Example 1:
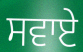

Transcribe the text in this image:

ਸਵਾਏ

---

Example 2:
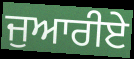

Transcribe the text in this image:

ਜੁਆਰੀਏ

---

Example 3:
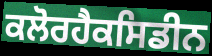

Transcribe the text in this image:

ਕਲੋਰਹੈਕਸਿਡੀਨ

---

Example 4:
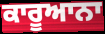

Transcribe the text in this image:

ਕਾਰੂਆਨਾ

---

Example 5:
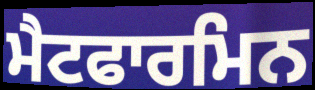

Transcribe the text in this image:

ਮੈਟਫਾਰਮਿਨ